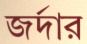
জর্দার